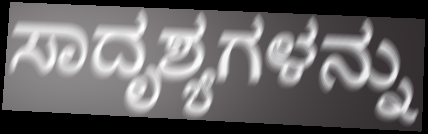
ಸಾದೃಶ್ಯಗಳನ್ನು